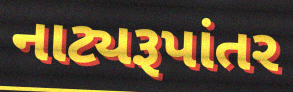
નાટ્યરૂપાંતર